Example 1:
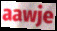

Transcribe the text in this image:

aawje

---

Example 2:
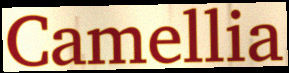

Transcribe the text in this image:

Camellia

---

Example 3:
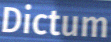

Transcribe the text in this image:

Dictum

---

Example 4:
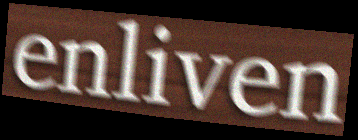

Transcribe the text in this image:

enliven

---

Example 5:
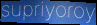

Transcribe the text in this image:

supriyoroy